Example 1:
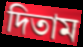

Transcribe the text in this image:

দিতাম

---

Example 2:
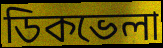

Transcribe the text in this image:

ডিকভেলা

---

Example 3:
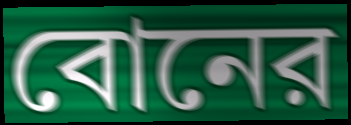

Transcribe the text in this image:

বোনের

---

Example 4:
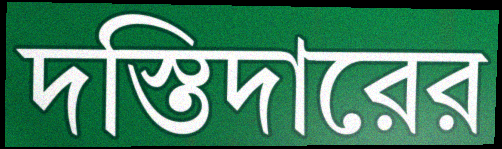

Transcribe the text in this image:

দস্তিদারের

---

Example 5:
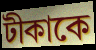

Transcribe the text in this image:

টীকাকে